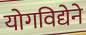
योगविद्येने